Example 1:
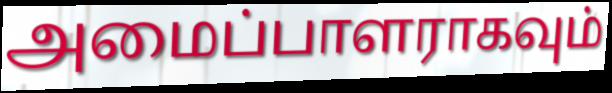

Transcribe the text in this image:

அமைப்பாளராகவும்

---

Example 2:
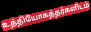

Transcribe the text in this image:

உத்தியோகத்தர்களிடம்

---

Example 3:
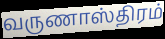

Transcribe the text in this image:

வருணாஸ்திரம்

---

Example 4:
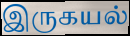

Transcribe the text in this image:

இருகயல்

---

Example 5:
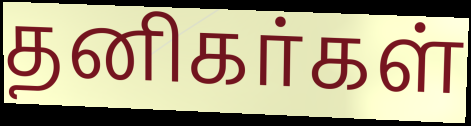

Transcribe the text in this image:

தனிகர்கள்